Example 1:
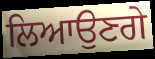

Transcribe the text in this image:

ਲਿਆਉਣਗੇ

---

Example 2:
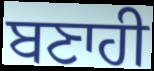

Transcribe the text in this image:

ਬਣਾਹੀ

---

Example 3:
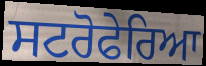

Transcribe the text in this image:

ਸਟਰੋਫੇਰਿਆ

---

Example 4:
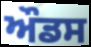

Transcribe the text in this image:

ਔਡਸ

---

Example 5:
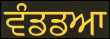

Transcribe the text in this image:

ਵੰਡਡਆ